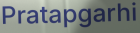
Pratapgarhi